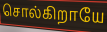
சொல்கிறாயே